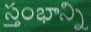
స్తంభాన్ని